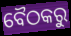
ବୈଠକରୁ